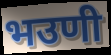
भउणी